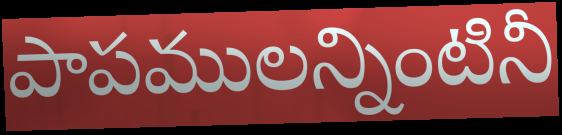
పాపములన్నింటినీ